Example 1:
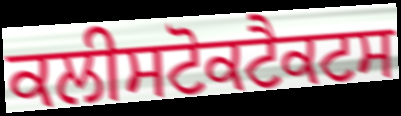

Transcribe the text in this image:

ਕਲੀਸਟੋਕਟੈਕਟਸ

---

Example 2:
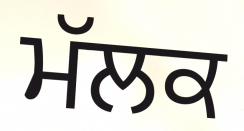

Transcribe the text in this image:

ਮੱਲਕ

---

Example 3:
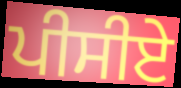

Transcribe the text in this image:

ਪੀਸੀਏ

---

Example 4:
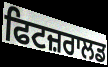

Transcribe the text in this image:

ਫਿਟਜ਼ਰਾਲਡ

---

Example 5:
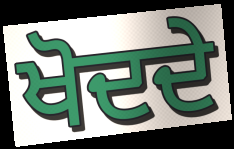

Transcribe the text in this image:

ਖੋਦਦੇ